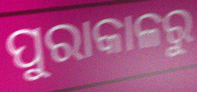
ପୁରାକାଳରୁ